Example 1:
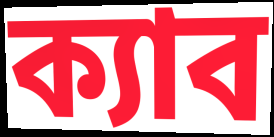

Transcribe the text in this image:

ক্যাব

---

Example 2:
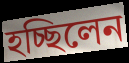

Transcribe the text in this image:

হচ্ছিলেন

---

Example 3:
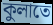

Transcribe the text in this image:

কুলাতে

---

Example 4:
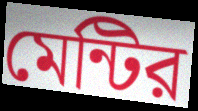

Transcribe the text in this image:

মেন্টির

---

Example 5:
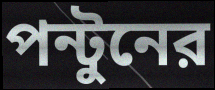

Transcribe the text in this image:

পন্টুনের